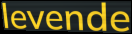
levende